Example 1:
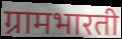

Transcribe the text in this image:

ग्रामभारती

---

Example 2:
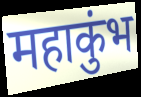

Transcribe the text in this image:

महाकुंभ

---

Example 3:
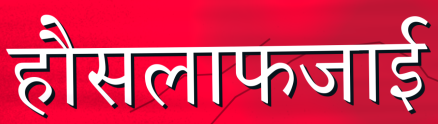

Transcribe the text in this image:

हौसलाफजाई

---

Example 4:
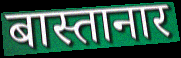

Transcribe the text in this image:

बास्तानार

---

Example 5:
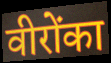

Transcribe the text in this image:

वीरोंका